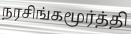
நரசிங்கமூர்த்தி